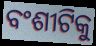
ବଂଶୀଟିକୁ